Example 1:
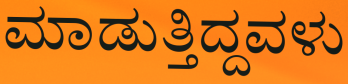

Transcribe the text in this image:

ಮಾಡುತ್ತಿದ್ದವಳು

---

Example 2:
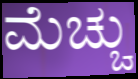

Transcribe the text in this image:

ಮೆಚ್ಚು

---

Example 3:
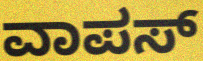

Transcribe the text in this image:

ವಾಪಸ್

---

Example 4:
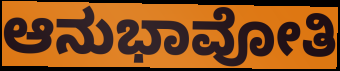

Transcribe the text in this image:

ಆನುಭಾವೋತಿ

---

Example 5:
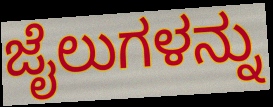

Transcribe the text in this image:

ಜೈಲುಗಳನ್ನು